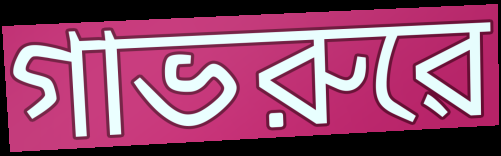
গাভৰুৱে